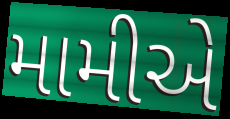
મામીએ